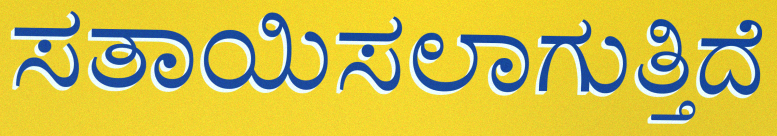
ಸತಾಯಿಸಲಾಗುತ್ತಿದೆ